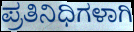
ಪ್ರತಿನಿಧಿಗಳಾಗಿ